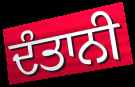
ਦੰਤਾਨੀ